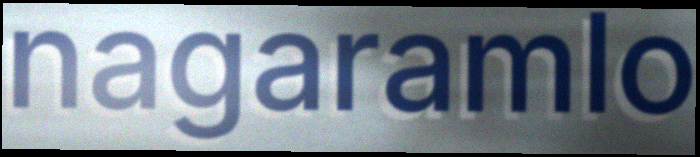
nagaramlo